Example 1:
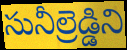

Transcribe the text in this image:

సునీల్రెడ్డిని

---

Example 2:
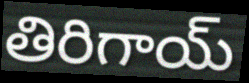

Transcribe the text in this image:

తిరిగాయ్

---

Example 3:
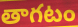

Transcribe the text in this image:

తాగటం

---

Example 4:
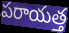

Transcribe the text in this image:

పరాయత్త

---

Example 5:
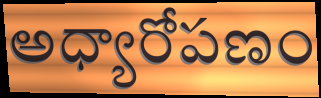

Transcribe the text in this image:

అధ్యారోపణం